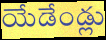
యేడేండ్లు